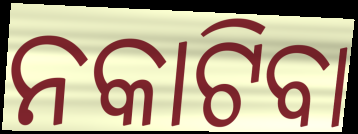
ନକାଟିବା